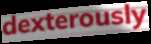
dexterously